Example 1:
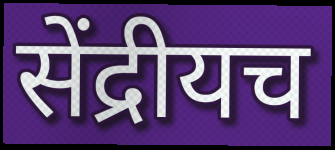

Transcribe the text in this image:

सेंद्रीयच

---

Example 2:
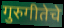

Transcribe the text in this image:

गुरुगीतेचे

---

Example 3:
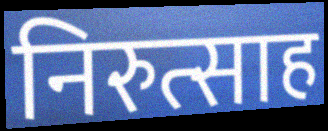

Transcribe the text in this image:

निरुत्साह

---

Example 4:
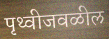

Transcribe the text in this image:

पृथ्वीजवळील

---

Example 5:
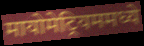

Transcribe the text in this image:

मायोमेट्रियममध्ये